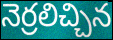
నెర్రలిచ్చిన